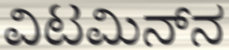
ವಿಟಮಿನ್‌ನ